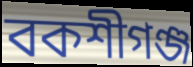
বকশীগঞ্জ